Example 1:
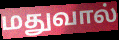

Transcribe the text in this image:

மதுவால்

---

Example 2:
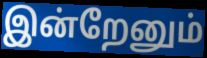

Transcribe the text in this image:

இன்றேனும்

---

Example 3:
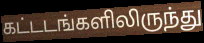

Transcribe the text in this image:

கட்டடங்களிலிருந்து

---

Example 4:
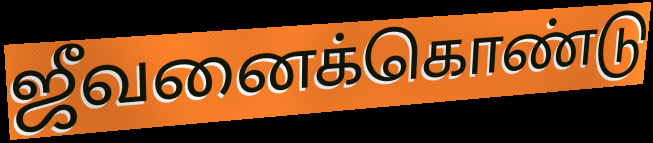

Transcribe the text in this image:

ஜீவனைக்கொண்டு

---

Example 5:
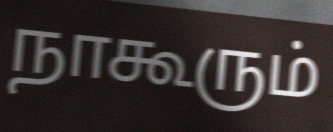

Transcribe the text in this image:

நாகூரும்